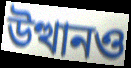
উত্থানও